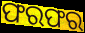
ଫରଫର